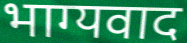
भाग्यवाद